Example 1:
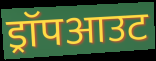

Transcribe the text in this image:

ड्रॉपआउट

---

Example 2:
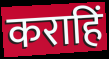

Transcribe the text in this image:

कराहिं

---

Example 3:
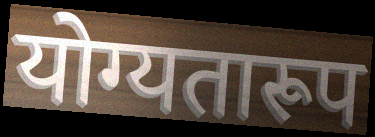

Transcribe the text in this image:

योग्यतारूप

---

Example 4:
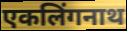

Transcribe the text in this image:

एकलिंगनाथ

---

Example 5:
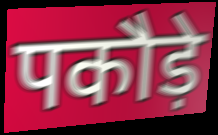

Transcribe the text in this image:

पकौड़े